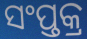
ସଂପ୍ତକ୍ର